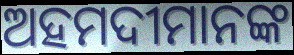
ଅହମଦୀମାନଙ୍କ